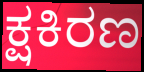
ಕ್ಷಕಿರಣ